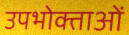
उपभोक्ताओं